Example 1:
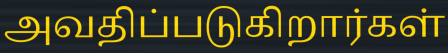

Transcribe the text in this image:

அவதிப்படுகிறார்கள்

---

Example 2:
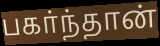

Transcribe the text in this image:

பகர்ந்தான்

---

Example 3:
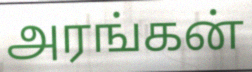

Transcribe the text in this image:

அரங்கன்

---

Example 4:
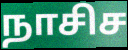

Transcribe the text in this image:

நாசிச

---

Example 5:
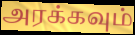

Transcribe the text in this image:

அரக்கவும்